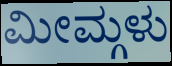
ಮೀಮ್ಗಳು